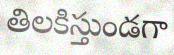
తిలకిస్తుండగా